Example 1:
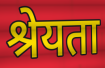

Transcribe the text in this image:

श्रेयता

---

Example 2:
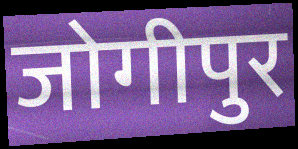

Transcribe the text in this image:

जोगीपुर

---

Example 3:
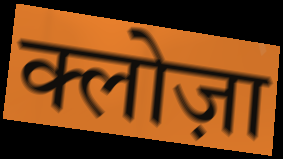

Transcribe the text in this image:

क्लोज़ा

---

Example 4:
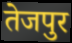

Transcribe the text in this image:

तेजपुर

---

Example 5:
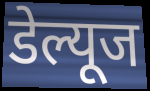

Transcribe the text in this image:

डेल्यूज